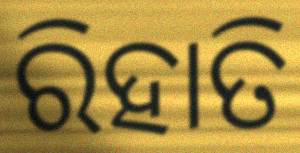
ରିହାତି